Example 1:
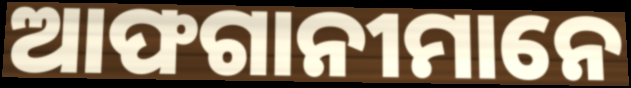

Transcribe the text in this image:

ଆଫଗାନୀମାନେ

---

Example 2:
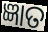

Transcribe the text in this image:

ଜ୍ଞାତ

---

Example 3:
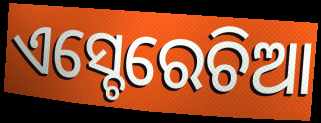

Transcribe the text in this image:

ଏସ୍ଚେରେଚିଆ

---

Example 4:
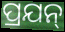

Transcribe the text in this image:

ପ୍ରଯନ୍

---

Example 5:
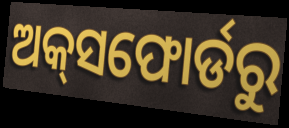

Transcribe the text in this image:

ଅକ୍‌ସଫୋର୍ଡରୁ